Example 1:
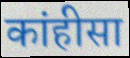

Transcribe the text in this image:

कांहीसा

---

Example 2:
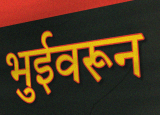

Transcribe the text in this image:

भुईवरून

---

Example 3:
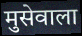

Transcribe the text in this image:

मुसेवाला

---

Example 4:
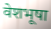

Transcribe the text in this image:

वेशभूषा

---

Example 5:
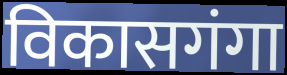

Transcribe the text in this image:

विकासगंगा